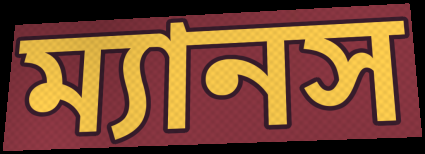
ম্যানস